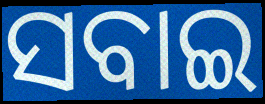
ସବାଇ